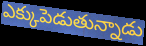
ఎక్కుపెడుతున్నాడు